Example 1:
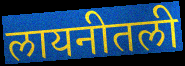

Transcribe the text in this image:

लायनीतली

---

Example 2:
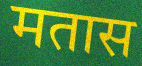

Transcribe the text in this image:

मतास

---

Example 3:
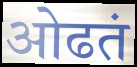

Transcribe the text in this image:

ओढतं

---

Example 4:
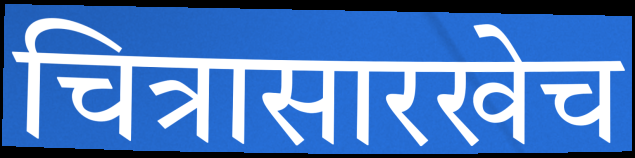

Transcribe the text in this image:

चित्रासारखेच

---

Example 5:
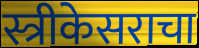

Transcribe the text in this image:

स्त्रीकेसराचा